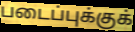
படைப்புக்குக்